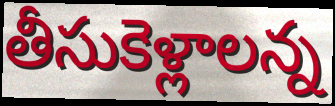
తీసుకెళ్లాలన్న